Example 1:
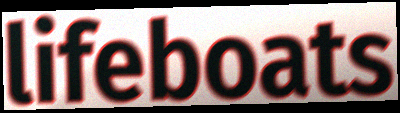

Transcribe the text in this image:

lifeboats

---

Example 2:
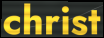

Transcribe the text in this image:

christ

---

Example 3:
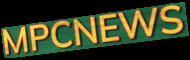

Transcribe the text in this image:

MPCNEWS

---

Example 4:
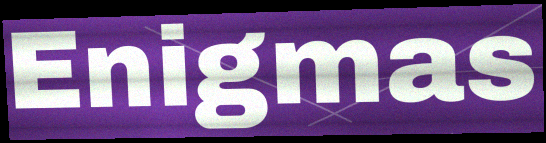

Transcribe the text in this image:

Enigmas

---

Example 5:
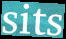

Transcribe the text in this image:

sits